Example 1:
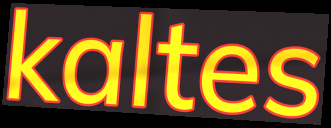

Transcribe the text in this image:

kaltes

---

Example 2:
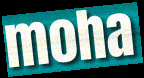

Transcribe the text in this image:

moha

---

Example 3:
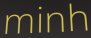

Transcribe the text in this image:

minh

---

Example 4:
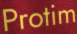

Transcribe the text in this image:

Protim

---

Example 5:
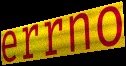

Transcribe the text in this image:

errno